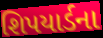
શિપયાર્ડના